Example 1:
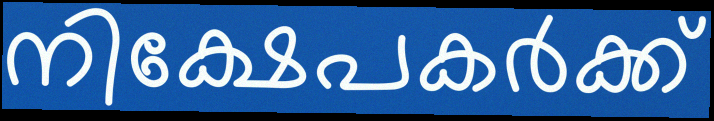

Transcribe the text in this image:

നിക്ഷേപകർക്ക്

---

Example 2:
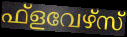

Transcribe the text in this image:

ഫ്ളവേഴ്സ്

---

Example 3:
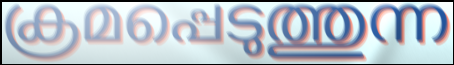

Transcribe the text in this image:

ക്രമപ്പെടുത്തുന്ന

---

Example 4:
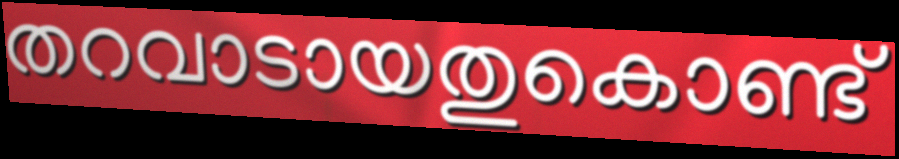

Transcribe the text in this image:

തറവാടായതുകൊണ്ട്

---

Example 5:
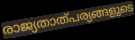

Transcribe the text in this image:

രാജ്യതാത്പര്യങ്ങളുടെ